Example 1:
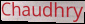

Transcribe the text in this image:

Chaudhry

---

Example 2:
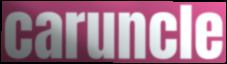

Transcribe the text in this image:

caruncle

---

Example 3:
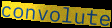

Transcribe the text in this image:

convolute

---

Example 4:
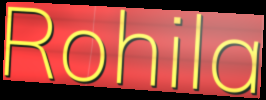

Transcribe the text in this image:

Rohila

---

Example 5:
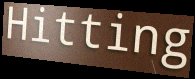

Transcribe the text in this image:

Hitting